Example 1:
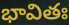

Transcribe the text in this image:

భావితః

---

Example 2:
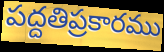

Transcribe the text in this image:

పద్దతిప్రకారము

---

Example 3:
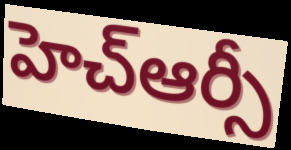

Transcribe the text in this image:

హెచ్ఆర్సీ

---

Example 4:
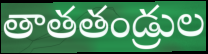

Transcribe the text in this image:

తాతతండ్రుల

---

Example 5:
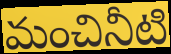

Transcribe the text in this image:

మంచినీటి